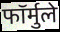
फॉर्मुले